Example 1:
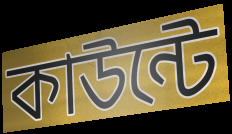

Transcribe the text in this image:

কাউন্টে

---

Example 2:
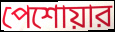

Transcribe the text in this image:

পেশোয়ার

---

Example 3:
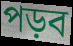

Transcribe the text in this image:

পড়ব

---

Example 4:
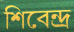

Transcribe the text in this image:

শিবেন্দ্র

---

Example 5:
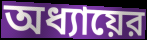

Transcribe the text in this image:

অধ্যায়ের